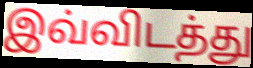
இவ்விடத்து